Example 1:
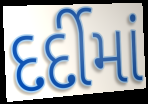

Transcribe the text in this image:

દર્દીમાં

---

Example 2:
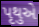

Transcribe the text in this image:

પૃથુએ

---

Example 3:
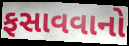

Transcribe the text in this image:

ફસાવવાનો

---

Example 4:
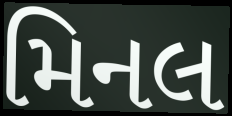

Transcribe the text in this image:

મિનલ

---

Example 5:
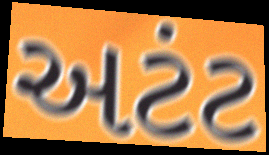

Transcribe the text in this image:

અટંટ